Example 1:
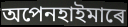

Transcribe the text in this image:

অপেনহাইমাৰে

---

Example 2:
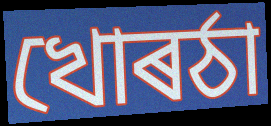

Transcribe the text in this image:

খোৰঠা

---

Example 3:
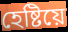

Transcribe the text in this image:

হেষ্টিয়ে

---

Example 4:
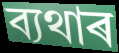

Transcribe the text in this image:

ব্যথাৰ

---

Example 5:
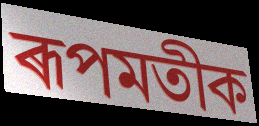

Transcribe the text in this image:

ৰূপমতীক